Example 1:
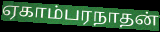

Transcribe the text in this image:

ஏகாம்பரநாதன்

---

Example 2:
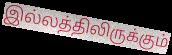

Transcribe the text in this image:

இல்லத்திலிருக்கும்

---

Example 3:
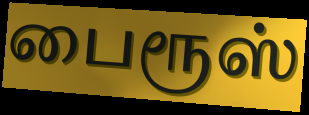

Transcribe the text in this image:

பைரூஸ்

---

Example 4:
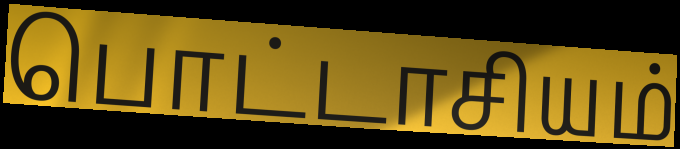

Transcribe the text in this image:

பொட்டாசியம்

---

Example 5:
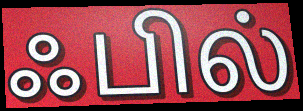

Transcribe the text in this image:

ஃபில்